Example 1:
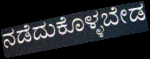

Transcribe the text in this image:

ನಡೆದುಕೊಳ್ಳಬೇಡ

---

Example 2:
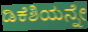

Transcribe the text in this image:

ಡಿಕೆಶಿಯನ್ನೇ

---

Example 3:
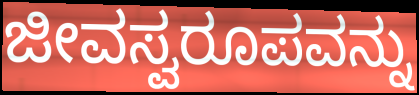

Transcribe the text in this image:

ಜೀವಸ್ವರೂಪವನ್ನು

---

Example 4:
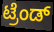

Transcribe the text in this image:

ಟ್ರೆಂಡ್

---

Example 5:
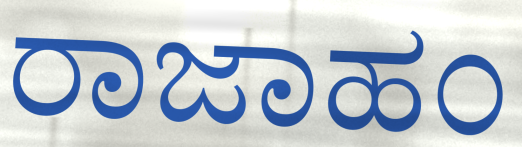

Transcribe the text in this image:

ರಾಜಾಹಂ